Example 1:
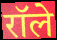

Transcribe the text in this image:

रॉले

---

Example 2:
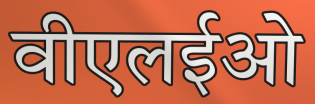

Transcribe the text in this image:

वीएलईओ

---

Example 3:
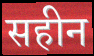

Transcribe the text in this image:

सहीन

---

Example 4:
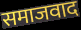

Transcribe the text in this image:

समाजवाद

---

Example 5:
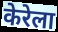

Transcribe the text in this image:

केरेला